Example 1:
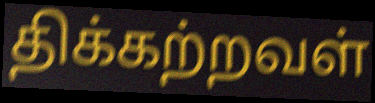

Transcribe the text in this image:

திக்கற்றவள்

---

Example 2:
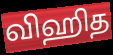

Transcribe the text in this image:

விஹித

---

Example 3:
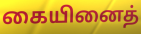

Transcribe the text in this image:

கையினைத்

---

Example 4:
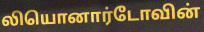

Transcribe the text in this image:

லியொனார்டோவின்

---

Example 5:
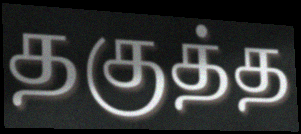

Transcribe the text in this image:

தகுத்த